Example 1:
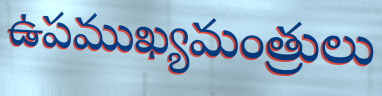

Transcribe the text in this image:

ఉపముఖ్యమంత్రులు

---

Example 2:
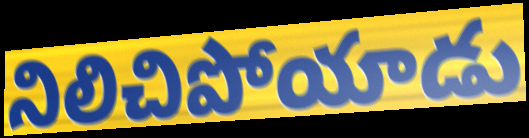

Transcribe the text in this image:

నిలిచిపోయాడు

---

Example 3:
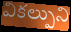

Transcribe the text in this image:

వికల్పుని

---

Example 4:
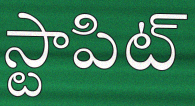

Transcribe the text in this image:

స్టాపిట్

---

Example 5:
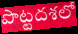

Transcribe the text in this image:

పొట్టదశలో